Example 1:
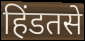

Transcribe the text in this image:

हिंडतसे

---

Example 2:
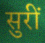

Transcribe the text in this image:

सुरीं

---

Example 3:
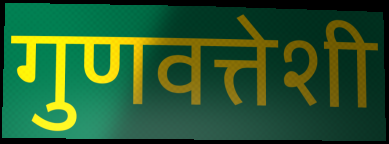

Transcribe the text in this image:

गुणवत्तेशी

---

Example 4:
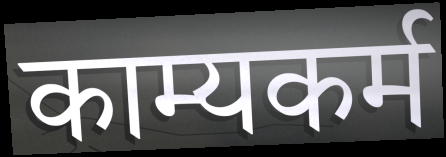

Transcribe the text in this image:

काम्यकर्म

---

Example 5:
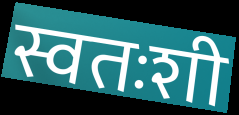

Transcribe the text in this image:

स्वतःशी